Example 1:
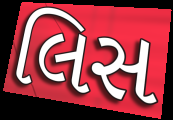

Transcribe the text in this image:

લિસ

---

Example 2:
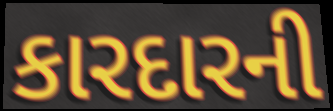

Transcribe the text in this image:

કારદારની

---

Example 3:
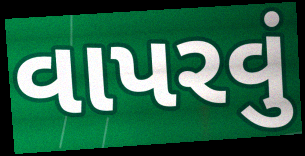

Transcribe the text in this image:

વાપરવું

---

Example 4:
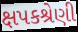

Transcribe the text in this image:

ક્ષપકશ્રેણી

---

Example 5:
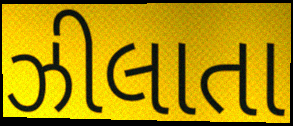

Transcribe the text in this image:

ઝીલાતા